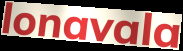
lonavala